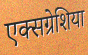
एक्सग्रेशिया